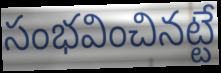
సంభవించినట్టే